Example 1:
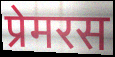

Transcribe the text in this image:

प्रेमरस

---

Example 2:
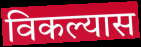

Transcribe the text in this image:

विकल्यास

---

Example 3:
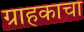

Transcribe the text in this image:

ग्राहकाचा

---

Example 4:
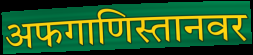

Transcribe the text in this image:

अफगाणिस्तानवर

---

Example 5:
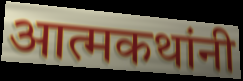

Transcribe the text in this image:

आत्मकथांनी